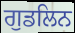
ਗੁਡਲਿਨ